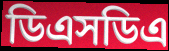
ডিএসডিএ